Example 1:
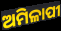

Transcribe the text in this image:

ଅମିଳାପୀ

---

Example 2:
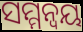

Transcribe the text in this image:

ସମ୍ମନ୍ୱୟ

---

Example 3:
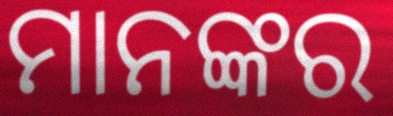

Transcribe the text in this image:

ମାନଙ୍କର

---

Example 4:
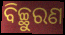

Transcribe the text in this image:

ବିଚ୍ଛୁରଣ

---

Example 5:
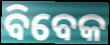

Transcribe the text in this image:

ବିବେକ